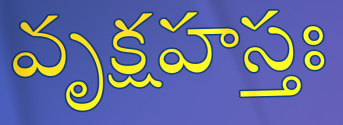
వృక్షహస్తః